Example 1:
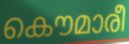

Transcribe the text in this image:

കൌമാരീ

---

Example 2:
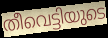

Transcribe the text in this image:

തീവെട്ടിയുടെ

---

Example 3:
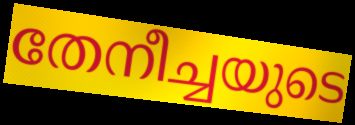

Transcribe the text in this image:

തേനീച്ചയുടെ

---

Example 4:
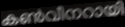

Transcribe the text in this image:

കൺവീനറായി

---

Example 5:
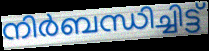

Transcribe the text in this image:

നിർബന്ധിച്ചിട്ട്